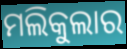
ମଲିକୁଲାର